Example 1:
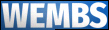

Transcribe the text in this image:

WEMBS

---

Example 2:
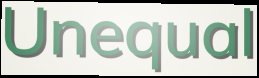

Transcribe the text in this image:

Unequal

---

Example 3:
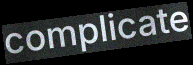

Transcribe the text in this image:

complicate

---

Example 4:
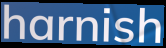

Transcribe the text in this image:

harnish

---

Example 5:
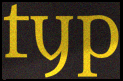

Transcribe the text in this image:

typ